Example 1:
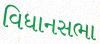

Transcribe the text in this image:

વિધાનસભા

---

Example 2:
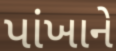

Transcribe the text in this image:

પાંખાને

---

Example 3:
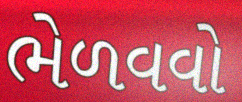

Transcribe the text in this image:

ભેળવવો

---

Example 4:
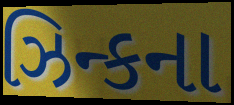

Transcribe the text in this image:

ઝિન્કના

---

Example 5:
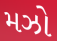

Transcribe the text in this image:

મઝો